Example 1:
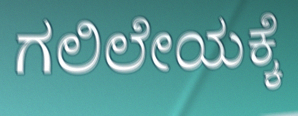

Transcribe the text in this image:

ಗಲಿಲೇಯಕ್ಕೆ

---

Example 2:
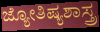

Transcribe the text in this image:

ಜ್ಯೋತಿಷ್ಯಶಾಸ್ತ್ರ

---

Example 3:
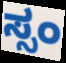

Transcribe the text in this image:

ಸ್ಸಂ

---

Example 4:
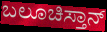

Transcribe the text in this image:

ಬಲೂಚಿಸ್ತಾನ್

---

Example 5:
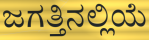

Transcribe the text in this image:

ಜಗತ್ತಿನಲ್ಲಿಯೆ